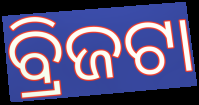
ବ୍ରିଜଟା